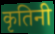
कृतिनी